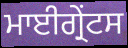
ਮਾਈਗ੍ਰੇਂਟਸ